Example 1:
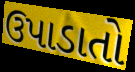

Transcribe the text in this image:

ઉપાડાતો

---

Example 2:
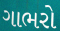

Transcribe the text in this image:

ગાભરો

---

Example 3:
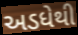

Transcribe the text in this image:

અડધેથી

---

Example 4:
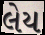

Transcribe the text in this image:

લેય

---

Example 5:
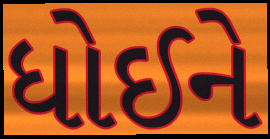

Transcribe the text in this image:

ધોઈને